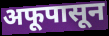
अफूपासून